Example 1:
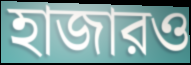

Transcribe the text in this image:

হাজারও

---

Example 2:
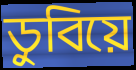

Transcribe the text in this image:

ডুবিয়ে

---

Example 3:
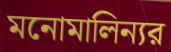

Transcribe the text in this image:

মনোমালিন্যর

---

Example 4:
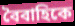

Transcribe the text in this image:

বৈবাহিকে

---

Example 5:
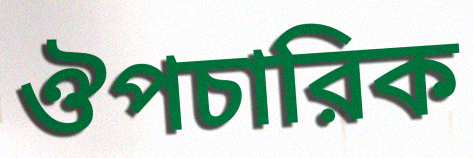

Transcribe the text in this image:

ঔপচারিক